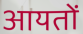
आयतों